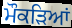
ਮੌਕੜਿਆਂ